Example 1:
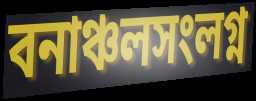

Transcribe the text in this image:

বনাঞ্চলসংলগ্ন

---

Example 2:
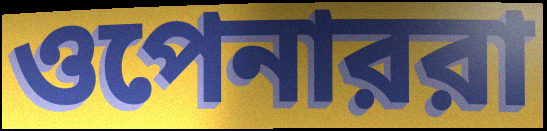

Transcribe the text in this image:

ওপেনাররা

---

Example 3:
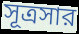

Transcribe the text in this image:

সূত্রসার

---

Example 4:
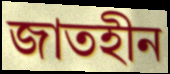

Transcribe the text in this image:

জাতহীন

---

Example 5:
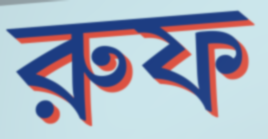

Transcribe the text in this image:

রুফ